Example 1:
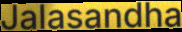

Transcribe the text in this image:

Jalasandha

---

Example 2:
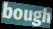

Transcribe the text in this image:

bough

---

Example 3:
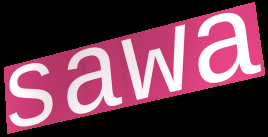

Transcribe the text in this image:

sawa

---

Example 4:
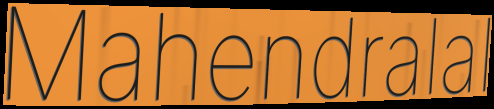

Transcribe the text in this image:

Mahendralal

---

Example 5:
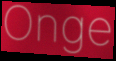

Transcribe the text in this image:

Onge